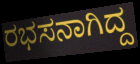
ರಭಸನಾಗಿದ್ದ